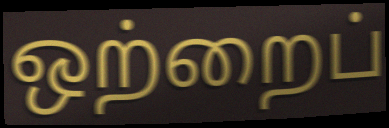
ஒற்றைப்